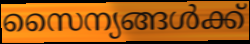
സൈന്യങ്ങൾക്ക്